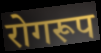
रोगरूप